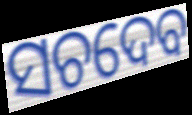
ସଚଦେବ